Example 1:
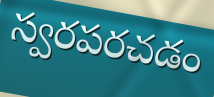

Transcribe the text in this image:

స్వరపరచడం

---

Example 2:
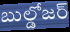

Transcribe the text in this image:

బుల్డోజర్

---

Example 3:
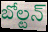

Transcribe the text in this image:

బోల్టన్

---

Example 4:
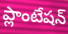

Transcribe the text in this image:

ప్లాంటేషన్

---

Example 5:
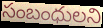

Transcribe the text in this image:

సంబంధులని